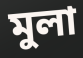
মুলা